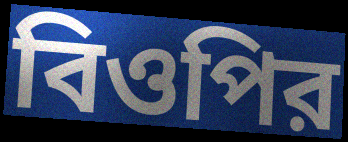
বিওপির